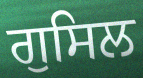
ਗੁਸਿਲ